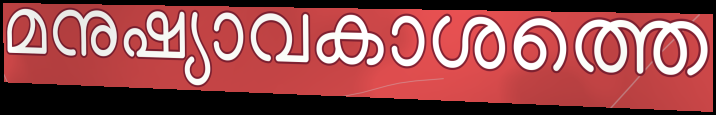
മനുഷ്യാവകാശത്തെ